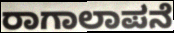
ರಾಗಾಲಾಪನೆ